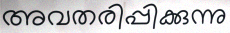
അവതരിപ്പിക്കുന്നു